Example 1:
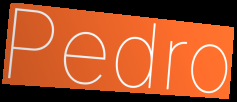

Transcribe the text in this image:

Pedro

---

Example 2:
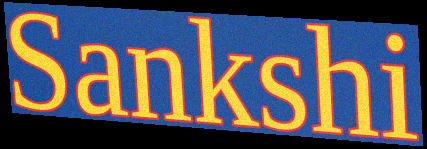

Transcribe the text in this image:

Sankshi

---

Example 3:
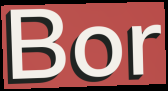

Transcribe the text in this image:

Bor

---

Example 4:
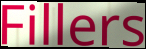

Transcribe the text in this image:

Fillers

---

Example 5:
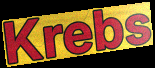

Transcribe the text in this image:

Krebs